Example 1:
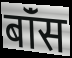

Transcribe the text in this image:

बॉंस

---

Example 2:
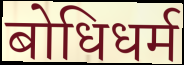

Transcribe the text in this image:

बोधिधर्म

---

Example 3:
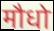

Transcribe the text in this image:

मौधो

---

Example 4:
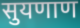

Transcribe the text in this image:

सुयणाण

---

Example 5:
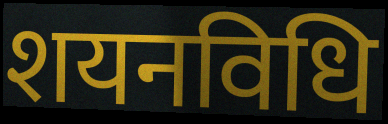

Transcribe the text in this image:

शयनविधि